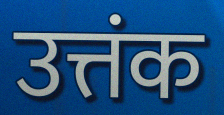
उत्तंक